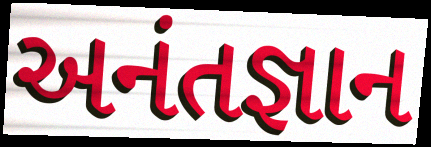
અનંતજ્ઞાન